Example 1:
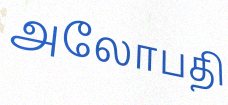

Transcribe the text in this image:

அலோபதி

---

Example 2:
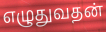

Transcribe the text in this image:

எழுதுவதன்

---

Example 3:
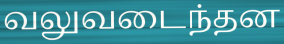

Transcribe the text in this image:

வலுவடைந்தன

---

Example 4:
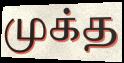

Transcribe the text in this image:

முக்த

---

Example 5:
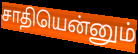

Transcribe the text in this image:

சாதியென்னும்